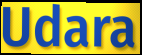
Udara